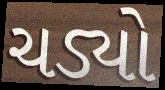
ચડ્યો